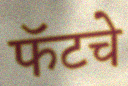
फॅटचे